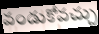
వండుకోవచ్చు